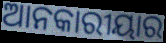
ଆନକାରୀୟାର